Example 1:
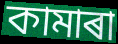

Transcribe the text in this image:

কামাৰা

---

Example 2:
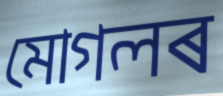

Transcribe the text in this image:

মোগলৰ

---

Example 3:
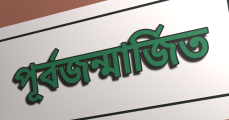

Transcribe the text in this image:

পূৰ্বজন্মাৰ্জিত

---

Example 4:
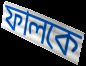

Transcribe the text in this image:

ফালকে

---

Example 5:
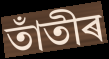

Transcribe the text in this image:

তাঁতীৰ